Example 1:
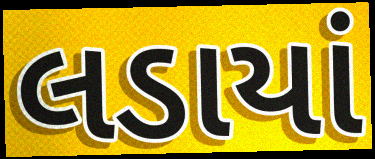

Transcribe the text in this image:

લડાયાં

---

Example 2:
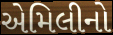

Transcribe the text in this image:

એમિલીનો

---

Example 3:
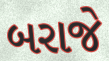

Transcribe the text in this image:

બરાજે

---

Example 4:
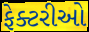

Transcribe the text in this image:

ફેક્ટરીઓ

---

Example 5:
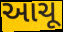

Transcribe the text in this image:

આચૂ